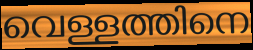
വെള്ളത്തിനെ